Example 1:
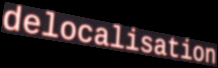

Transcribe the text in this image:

delocalisation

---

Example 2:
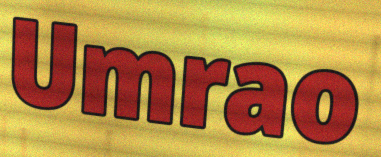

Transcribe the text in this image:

Umrao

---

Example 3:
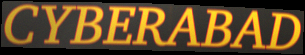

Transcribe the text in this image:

CYBERABAD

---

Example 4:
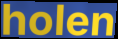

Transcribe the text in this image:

holen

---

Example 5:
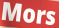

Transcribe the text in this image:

Mors